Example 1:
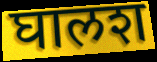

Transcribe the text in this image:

घालश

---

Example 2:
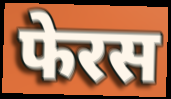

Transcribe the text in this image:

फेरस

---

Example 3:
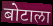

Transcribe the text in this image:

बोटाला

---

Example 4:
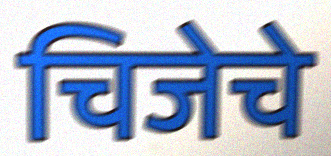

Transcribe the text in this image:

चिजेचे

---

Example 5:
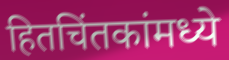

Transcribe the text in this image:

हितचिंतकांमध्ये